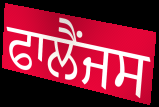
ਫਾਲੈਂਜਸ